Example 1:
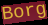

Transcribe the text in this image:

Borg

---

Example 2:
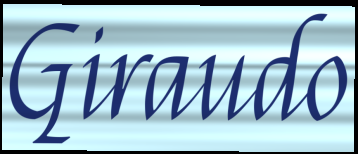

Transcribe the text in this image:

Giraudo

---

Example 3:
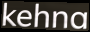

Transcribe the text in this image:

kehna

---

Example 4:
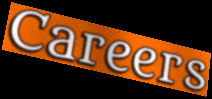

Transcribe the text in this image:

Careers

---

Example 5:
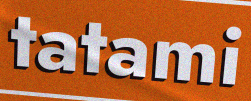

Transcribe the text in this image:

tatami